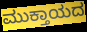
ಮುಕ್ತಾಯದ